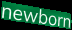
newborn